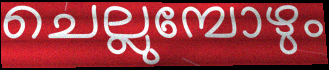
ചെല്ലുമ്പോഴും